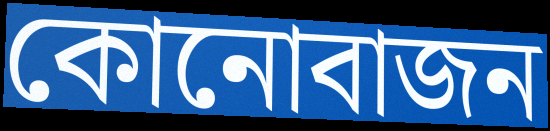
কোনোবাজন